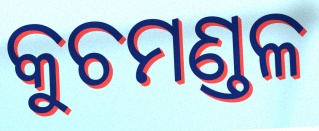
କୁଚମଣ୍ଡଳ